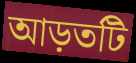
আড়তটি